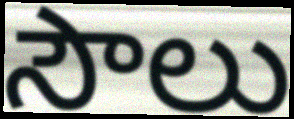
సౌలు